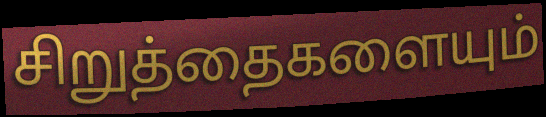
சிறுத்தைகளையும்